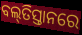
ବଲ୍‌ତିସ୍ତାନରେ